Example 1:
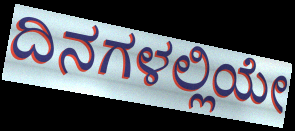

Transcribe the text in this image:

ದಿನಗಳಲ್ಲಿಯೇ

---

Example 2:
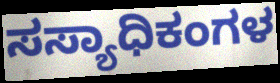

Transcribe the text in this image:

ಸಸ್ಯಾಧಿಕಂಗಳ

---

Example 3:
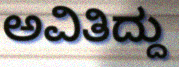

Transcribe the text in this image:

ಅವಿತಿದ್ದು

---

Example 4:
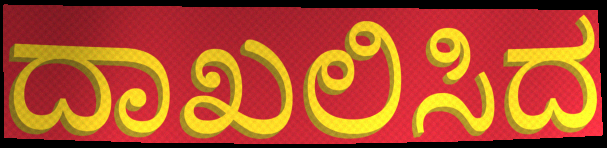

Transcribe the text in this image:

ದಾಖಲಿಸಿದ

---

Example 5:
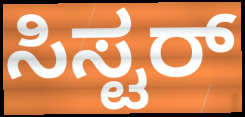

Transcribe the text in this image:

ಸಿಸ್ಟರ್